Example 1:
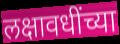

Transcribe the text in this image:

लक्षावधींच्या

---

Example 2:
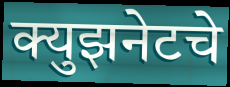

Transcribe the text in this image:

क्युझनेटचे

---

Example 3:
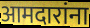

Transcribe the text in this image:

आमदारांना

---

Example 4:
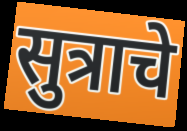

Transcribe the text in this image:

सुत्राचे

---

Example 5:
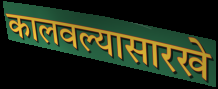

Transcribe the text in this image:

कालवल्यासारखे